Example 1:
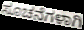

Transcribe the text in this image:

ಸೂಚನೆಗಳಾಗಿ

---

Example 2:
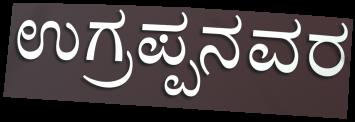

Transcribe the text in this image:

ಉಗ್ರಪ್ಪನವರ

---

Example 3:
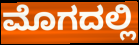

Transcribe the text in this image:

ಮೊಗದಲ್ಲಿ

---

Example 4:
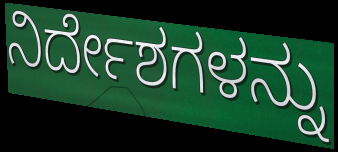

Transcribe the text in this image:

ನಿರ್ದೇಶಗಳನ್ನು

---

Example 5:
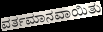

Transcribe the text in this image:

ವರ್ತಮಾನವಾಯಿತು